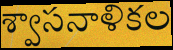
శ్వాసనాళికల